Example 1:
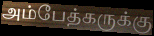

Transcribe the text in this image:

அம்பேத்கருக்கு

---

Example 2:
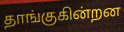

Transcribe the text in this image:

தாங்குகின்றன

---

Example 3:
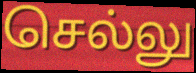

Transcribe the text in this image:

செல்லு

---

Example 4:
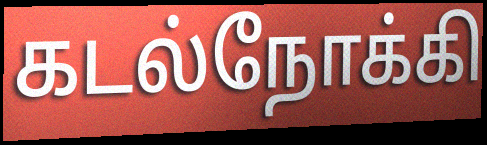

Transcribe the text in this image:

கடல்நோக்கி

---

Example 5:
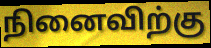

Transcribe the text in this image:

நினைவிற்கு